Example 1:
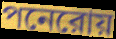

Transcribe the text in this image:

পনেরোয়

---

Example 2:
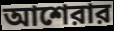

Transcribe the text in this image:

আশেরার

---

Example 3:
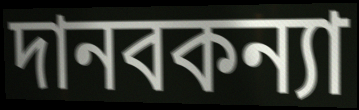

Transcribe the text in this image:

দানবকন্যা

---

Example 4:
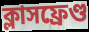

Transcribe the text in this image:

ক্লাসফ্রেণ্ড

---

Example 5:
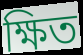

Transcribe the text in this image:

ক্ষিত